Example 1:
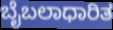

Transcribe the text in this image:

ಬೈಬಲಾಧಾರಿತ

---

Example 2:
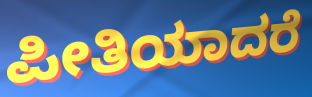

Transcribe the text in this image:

ಪೀತಿಯಾದರೆ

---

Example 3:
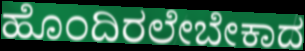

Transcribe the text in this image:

ಹೊಂದಿರಲೇಬೇಕಾದ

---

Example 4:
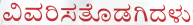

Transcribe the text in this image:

ವಿವರಿಸತೊಡಗಿದಳು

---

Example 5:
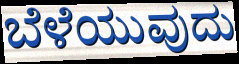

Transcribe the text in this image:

ಬೆಳೆಯುವುದು